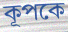
কূপকে